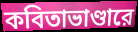
কবিতাভাণ্ডারে